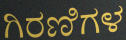
ಗಿರಣಿಗಳ